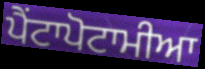
ਪੈਂਟਾਪੋਟਾਮੀਆ